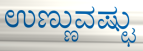
ಉಣ್ಣುವಷ್ಟು